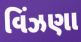
વિંઝણા